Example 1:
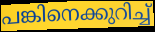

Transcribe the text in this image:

പങ്കിനെക്കുറിച്ച്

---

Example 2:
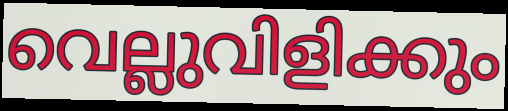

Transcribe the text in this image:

വെല്ലുവിളിക്കും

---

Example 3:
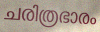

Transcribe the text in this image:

ചരിത്രഭാരം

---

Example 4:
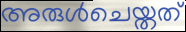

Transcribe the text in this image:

അരുൾചെയ്തത്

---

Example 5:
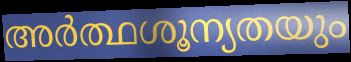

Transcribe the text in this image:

അർത്ഥശൂന്യതയും